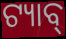
ଟ୍ୟାବ୍